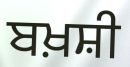
ਬਖ਼ਸ਼ੀ